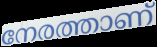
നേരത്താണ്